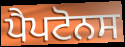
ਪੈਪਟੋਨਸ